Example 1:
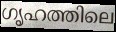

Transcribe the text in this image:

ഗൃഹത്തിലെ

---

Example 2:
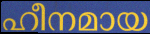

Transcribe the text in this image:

ഹീനമായ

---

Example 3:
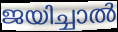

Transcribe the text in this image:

ജയിച്ചാൽ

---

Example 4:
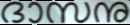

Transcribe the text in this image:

ദാസനു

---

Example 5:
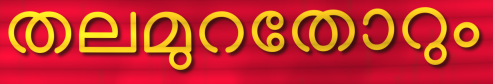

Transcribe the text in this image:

തലമുറതോറും